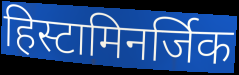
हिस्टामिनर्जिक